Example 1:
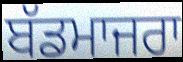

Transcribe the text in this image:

ਬੱਡਮਾਜਰਾ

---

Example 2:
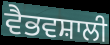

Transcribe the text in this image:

ਵੈਭਵਸ਼ਾਲੀ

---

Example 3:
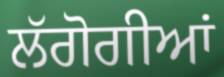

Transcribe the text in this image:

ਲੱਗੋਗੀਆਂ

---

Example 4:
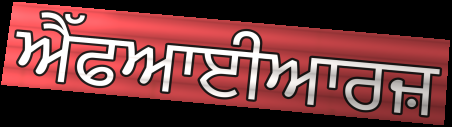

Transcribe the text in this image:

ਐੱਫਆਈਆਰਜ਼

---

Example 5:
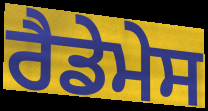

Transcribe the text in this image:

ਰੈਡੇਮੇਸ